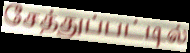
சேத்துப்பட்டில்